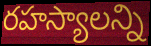
రహస్యాలన్ని